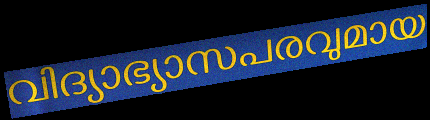
വിദ്യാഭ്യാസപരവുമായ